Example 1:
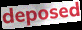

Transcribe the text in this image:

deposed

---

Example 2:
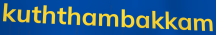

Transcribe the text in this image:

kuththambakkam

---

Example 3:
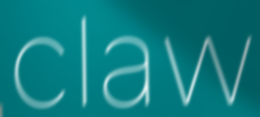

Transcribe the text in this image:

claw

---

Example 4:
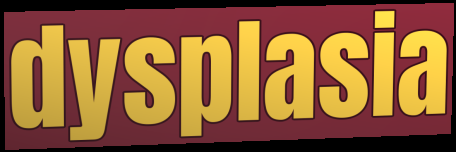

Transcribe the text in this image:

dysplasia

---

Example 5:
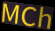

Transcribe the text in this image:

MCh